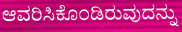
ಆವರಿಸಿಕೊಂಡಿರುವುದನ್ನು